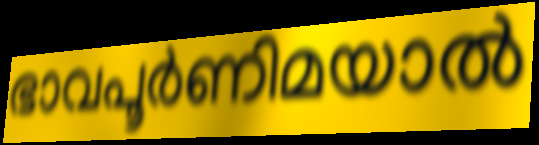
ഭാവപൂർണിമയാൽ